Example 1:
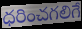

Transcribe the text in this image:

ధరించగలిగే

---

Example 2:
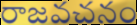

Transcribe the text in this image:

రాజవచనం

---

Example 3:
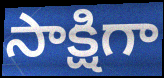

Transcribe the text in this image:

సాక్షిగా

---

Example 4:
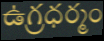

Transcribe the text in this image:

ఉగ్రధర్మం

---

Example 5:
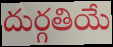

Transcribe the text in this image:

దుర్గతియే